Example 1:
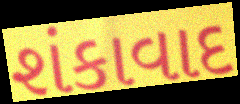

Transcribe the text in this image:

શંકાવાદ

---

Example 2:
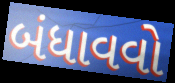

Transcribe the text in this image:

બંધાવવો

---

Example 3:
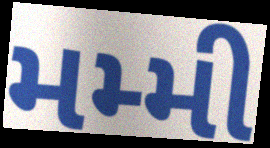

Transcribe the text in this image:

મમ્મી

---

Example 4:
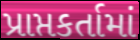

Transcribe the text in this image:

પ્રાપ્તકર્તામાં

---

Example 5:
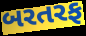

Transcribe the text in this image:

બરતરફ